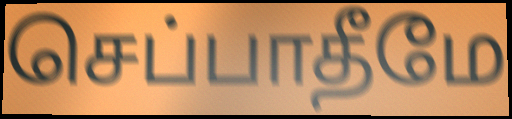
செப்பாதீமே